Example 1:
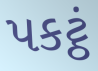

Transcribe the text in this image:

પકટ્ઠં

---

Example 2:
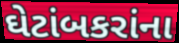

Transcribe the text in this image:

ઘેટાંબકરાંના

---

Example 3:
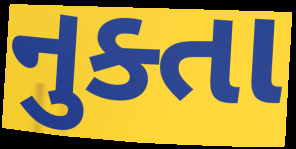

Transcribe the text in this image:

નુક્તા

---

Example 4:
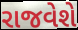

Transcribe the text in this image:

રાજવેશે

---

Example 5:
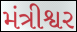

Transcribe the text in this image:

મંત્રીશ્વર